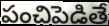
పంచిపెడితే